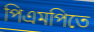
পিএমপিতে